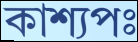
কাশ্যপঃ